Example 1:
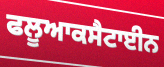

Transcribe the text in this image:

ਫਲੂਆਕਸੈਟਾਈਨ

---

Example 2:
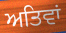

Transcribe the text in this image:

ਅਤਿਵਾਂ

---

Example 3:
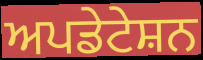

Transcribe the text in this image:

ਅਪਡੇਟੇਸ਼ਨ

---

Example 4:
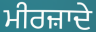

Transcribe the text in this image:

ਮੀਰਜ਼ਾਦੇ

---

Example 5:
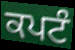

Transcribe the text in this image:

ਕਪਟੰ